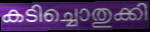
കടിച്ചൊതുക്കി